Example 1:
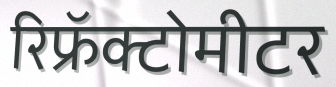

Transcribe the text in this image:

रिफ्रॅक्टोमीटर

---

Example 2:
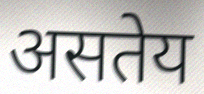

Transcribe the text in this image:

असतेय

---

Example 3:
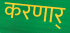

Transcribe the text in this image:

करणार्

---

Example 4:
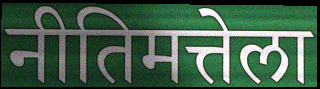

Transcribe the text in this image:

नीतिमत्तेला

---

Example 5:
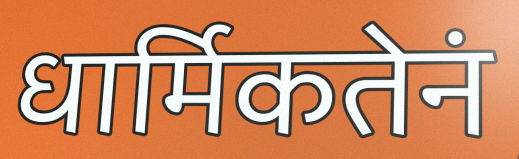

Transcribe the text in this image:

धार्मिकतेनं